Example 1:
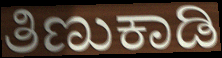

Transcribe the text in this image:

ತಿಣುಕಾಡಿ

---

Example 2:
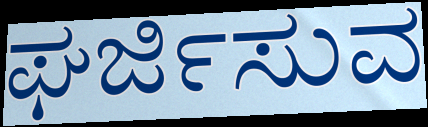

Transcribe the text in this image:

ಘರ್ಜಿಸುವ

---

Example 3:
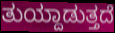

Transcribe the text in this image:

ತುಯ್ದಾಡುತ್ತದೆ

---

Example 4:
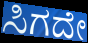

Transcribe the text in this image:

ಸಿಗದೇ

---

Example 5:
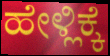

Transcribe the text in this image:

ಹೇಳ್ಲಿಕ್ಕೆ